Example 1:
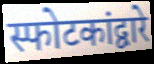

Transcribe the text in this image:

स्फोटकांद्वारे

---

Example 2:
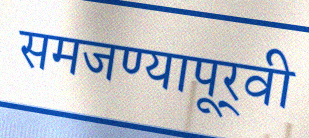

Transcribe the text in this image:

समजण्यापूर्वी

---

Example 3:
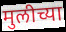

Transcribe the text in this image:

मुलीच्‍या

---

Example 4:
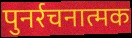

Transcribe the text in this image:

पुनर्रचनात्मक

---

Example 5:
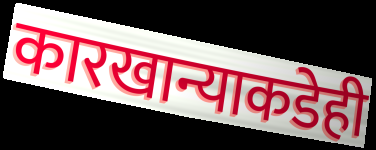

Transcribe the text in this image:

कारखान्याकडेही